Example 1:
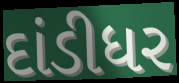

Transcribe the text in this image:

દાંડીધર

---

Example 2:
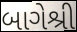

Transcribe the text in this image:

બાગેશ્રી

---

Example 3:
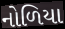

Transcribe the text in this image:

નોળિયા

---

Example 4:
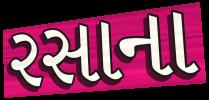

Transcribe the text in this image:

રસાના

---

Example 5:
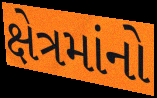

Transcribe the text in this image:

ક્ષેત્રમાંનો